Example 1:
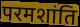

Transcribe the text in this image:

परमशांति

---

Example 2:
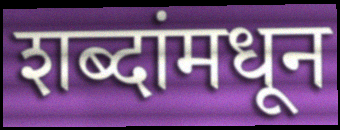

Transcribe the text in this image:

शब्दांमधून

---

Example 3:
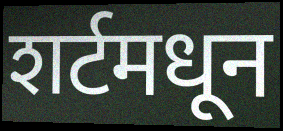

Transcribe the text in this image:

शर्टमधून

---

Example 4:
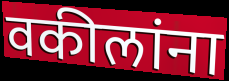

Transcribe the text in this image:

वकीलांना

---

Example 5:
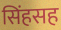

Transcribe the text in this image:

सिंहसह